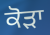
ਕੋੜਾ